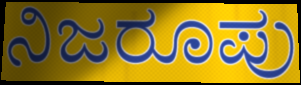
ನಿಜರೂಪು